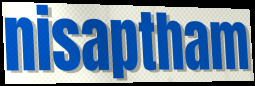
nisaptham